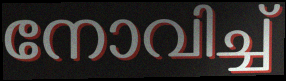
നോവിച്ച്